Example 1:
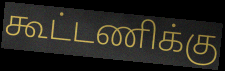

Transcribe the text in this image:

கூட்டணிக்கு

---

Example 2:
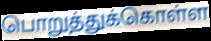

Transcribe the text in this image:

பொறுத்துக்கொள்ள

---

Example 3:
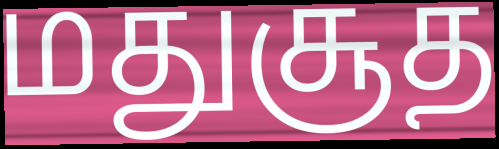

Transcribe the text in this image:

மதுசூத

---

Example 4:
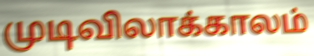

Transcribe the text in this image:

முடிவிலாக்காலம்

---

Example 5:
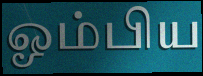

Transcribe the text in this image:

ஓம்பிய